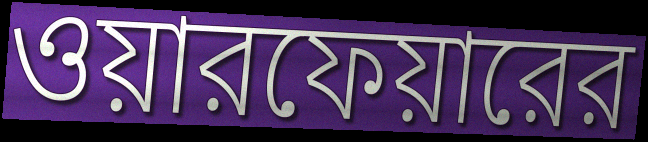
ওয়ারফেয়ারের